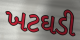
ખટઘડી